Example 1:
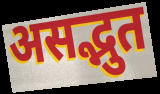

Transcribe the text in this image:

असद्भुत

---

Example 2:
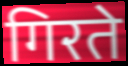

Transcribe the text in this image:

गिरते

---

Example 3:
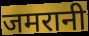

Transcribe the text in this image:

जमरानी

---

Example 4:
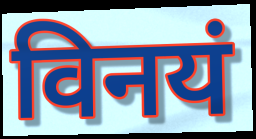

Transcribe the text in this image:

विनयं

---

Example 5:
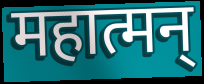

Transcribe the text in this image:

महात्मन्